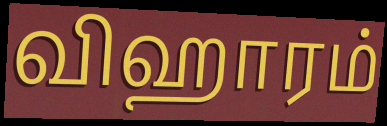
விஹாரம்